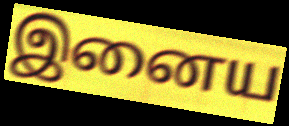
இனைய